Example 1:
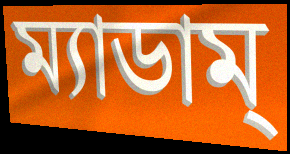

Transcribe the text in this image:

ম্যাডাম্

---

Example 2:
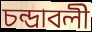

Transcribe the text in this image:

চন্দ্রাবলী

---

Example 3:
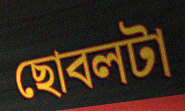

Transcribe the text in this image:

ছোবলটা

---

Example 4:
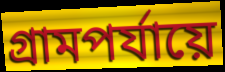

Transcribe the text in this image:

গ্রামপর্যায়ে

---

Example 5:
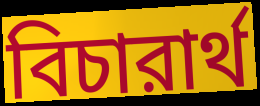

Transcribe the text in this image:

বিচারার্থ